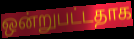
ஒன்றுபட்டதாக